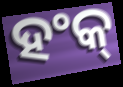
ହଂକ୍